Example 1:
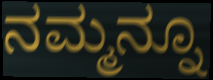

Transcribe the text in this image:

ನಮ್ಮನ್ನೂ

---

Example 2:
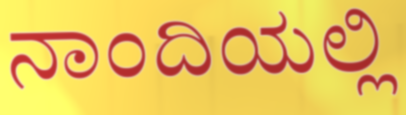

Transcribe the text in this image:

ನಾಂದಿಯಲ್ಲಿ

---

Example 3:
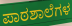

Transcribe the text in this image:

ಪಾಠಶಾಲೆಗಳ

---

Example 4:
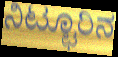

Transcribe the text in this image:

ನಿಟ್ಟೂರಿನ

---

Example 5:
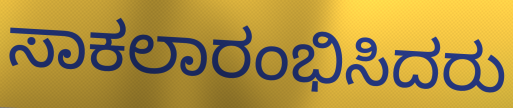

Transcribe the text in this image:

ಸಾಕಲಾರಂಭಿಸಿದರು